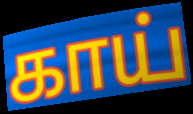
காய்